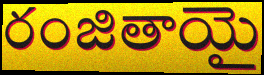
రంజితాయై